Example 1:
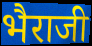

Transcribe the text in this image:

भैराजी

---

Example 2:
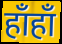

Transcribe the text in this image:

हाँहाँ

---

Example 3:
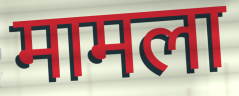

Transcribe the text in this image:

मामला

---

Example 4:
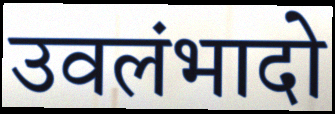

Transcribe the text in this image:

उवलंभादो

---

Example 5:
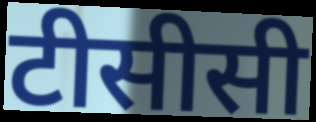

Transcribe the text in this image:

टीसीसी